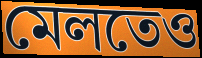
মেলতেও